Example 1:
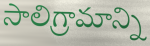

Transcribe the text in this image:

సాలిగ్రామాన్ని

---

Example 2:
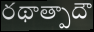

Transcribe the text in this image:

రథాత్పాదౌ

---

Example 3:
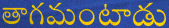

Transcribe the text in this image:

తాగమంటాడు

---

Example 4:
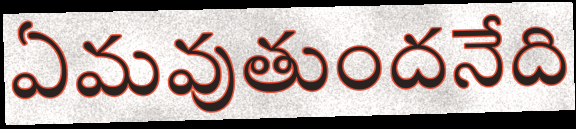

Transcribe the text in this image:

ఏమవుతుందనేది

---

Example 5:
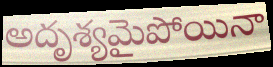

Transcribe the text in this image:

అదృశ్యమైపోయినా